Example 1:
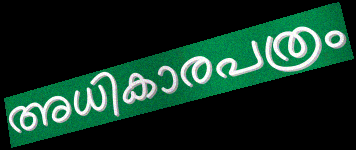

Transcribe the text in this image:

അധികാരപത്രം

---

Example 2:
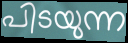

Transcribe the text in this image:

പിടയുന്ന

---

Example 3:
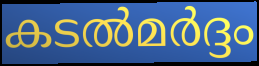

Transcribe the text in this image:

കടൽമർദ്ദം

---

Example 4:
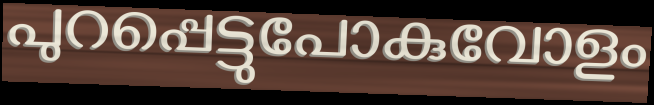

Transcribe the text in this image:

പുറപ്പെട്ടുപോകുവോളം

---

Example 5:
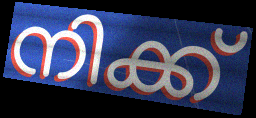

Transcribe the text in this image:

നിക്ക്